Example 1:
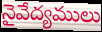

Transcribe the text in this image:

నైవేద్యములు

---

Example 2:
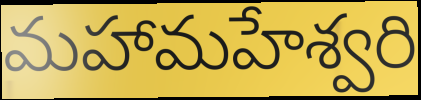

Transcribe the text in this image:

మహామహేశ్వరి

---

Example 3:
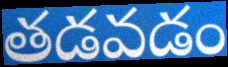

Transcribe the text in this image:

తడవడం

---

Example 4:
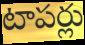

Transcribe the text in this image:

టాపర్లు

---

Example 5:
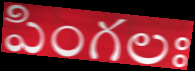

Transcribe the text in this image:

పింగలః